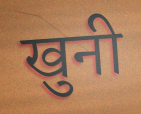
खुनी